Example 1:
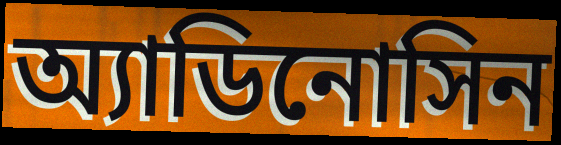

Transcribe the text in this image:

অ্যাডিনোসিন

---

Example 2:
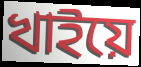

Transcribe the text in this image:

খাইয়ে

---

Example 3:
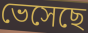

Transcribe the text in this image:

ভেসেছে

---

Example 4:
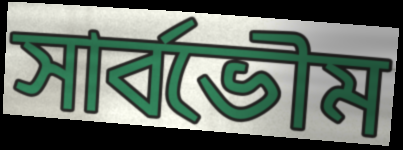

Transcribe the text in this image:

সার্বভৌম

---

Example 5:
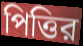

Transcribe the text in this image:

পিত্তির